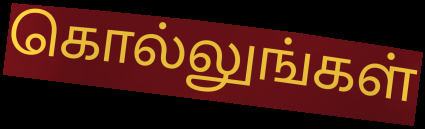
கொல்லுங்கள்